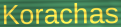
Korachas